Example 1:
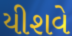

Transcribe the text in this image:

યીશવે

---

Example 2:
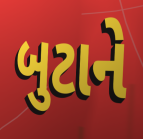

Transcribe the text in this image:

બુટાને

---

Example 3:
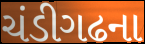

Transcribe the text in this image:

ચંડીગઢના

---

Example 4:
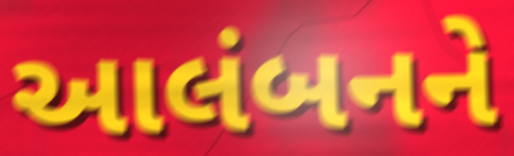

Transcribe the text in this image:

આલંબનને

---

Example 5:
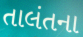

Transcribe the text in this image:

તાલંતના